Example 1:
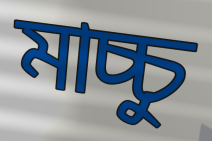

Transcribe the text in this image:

মাচ্চু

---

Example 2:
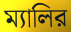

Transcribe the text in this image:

ম্যালির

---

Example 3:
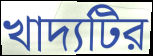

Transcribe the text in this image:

খাদ্যটির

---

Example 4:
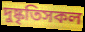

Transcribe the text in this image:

দুষ্কৃতিসকল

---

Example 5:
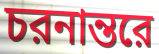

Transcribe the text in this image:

চরনান্তরে